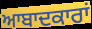
ਆਬਾਦਕਾਰਾਂ